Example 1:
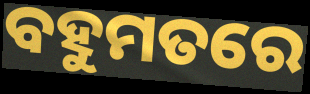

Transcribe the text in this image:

ବହୁମତରେ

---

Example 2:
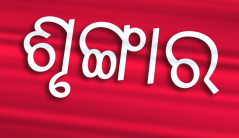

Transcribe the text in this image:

ଶୃଙ୍ଗାର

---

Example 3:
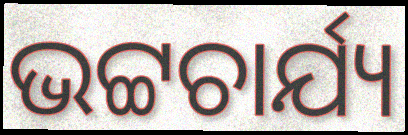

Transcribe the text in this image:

ଭଟ୍ଟଚାର୍ଯ୍ୟ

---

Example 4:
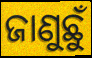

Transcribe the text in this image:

ଜାଣୁଛୁଁ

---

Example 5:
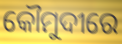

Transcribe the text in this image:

କୌମୁଦୀରେ